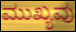
ಮುಖ್ಯವು